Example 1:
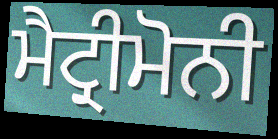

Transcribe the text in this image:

ਮੈਟ੍ਰੀਮੋਨੀ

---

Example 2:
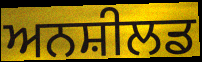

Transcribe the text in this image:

ਅਨਸ਼ੀਲਡ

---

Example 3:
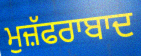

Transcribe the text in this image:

ਮੁਜ਼ੱਫਰਾਬਾਦ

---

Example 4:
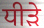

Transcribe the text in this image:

ਧੀੜੇ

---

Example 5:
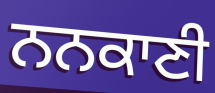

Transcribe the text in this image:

ਨਨਕਾਣੀ